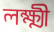
লক্ষ্মী